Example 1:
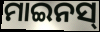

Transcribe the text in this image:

ମାଇନସ୍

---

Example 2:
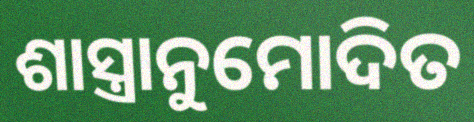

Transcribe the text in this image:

ଶାସ୍ତ୍ରାନୁମୋଦିତ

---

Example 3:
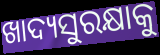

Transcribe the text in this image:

ଖାଦ୍ୟସୁରକ୍ଷାକୁ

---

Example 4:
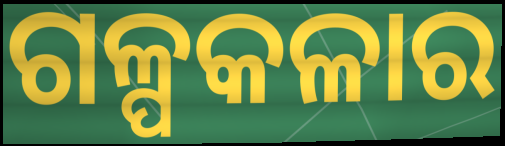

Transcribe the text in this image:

ଗଳ୍ପକଳାର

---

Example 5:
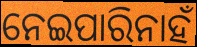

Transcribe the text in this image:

ନେଇପାରିନାହଁ